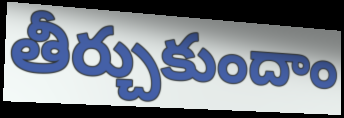
తీర్చుకుందాం